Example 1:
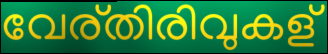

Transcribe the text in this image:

വേര്തിരിവുകള്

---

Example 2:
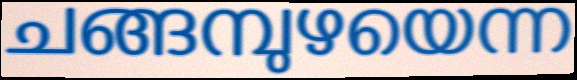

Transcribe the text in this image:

ചങ്ങമ്പുഴയെന്ന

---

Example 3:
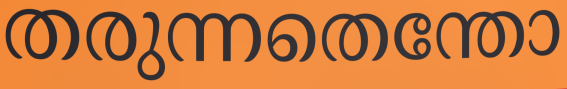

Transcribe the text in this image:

തരുന്നതെന്തോ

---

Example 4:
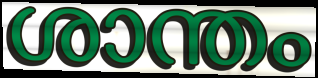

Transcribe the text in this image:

ശാന്തം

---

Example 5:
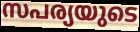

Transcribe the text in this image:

സപര്യയുടെ